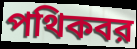
পথিকবর